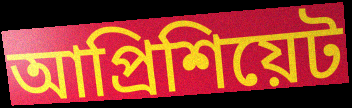
আপ্রিশিয়েট